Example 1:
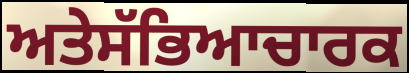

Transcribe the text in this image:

ਅਤੇਸੱਭਿਆਚਾਰਕ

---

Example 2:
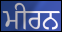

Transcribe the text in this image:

ਮੀਰਨ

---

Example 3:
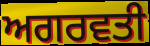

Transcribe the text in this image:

ਅਗਰਵਤੀ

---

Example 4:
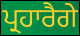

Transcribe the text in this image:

ਪ੍ਰਹਾਰੈਗੇ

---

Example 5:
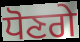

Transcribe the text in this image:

ਧੋਣਗੇ